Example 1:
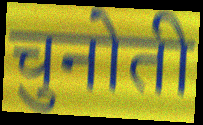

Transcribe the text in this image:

चुनोती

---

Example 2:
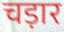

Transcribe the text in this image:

चड़ार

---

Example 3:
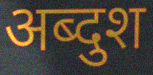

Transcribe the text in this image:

अब्दुश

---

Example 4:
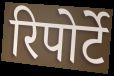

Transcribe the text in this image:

रिपोर्टे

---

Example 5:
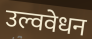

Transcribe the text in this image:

उल्ववेधन